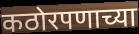
कठोरपणाच्या